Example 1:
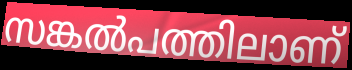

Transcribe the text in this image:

സങ്കൽപത്തിലാണ്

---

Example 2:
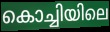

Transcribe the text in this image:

കൊച്ചിയിലെ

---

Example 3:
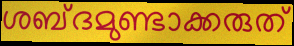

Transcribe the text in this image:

ശബ്ദമുണ്ടാക്കരുത്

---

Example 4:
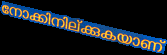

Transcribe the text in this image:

നോക്കിനില്ക്കുകയാണ്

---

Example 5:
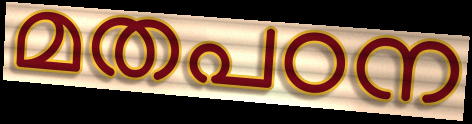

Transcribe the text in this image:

മതപഠന